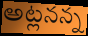
అట్లనన్న